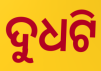
ଦୁଧଟି